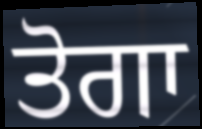
ਤੋਗਾ